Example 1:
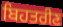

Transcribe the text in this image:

ਬਿਹਤਰੀਣ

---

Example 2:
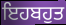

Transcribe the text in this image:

ਇਹਬਹੁਤ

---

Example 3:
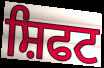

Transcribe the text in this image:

ਸ਼ਿਫਟ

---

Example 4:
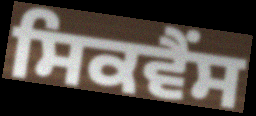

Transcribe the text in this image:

ਸਿਕਵੈਂਸ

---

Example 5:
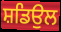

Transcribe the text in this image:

ਸ਼ਡਿਉਲ